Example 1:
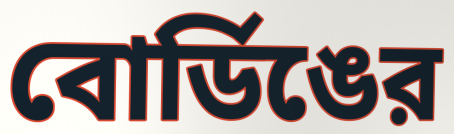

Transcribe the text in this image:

বোর্ডিঙের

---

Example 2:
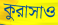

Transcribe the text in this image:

কুরাসাও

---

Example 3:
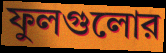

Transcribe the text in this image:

ফুলগুলোর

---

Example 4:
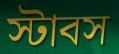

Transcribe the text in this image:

স্টাবস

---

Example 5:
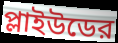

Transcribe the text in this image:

প্লাইউডের